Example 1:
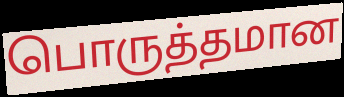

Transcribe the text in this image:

பொருத்தமான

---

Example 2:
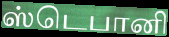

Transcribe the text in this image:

ஸ்டெபானி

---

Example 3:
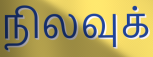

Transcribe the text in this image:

நிலவுக்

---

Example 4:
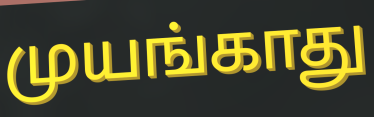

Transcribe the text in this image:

முயங்காது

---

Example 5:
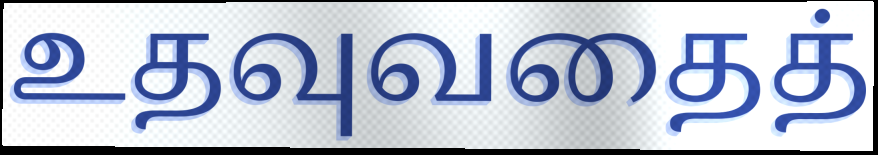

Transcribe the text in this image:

உதவுவதைத்